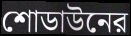
শোডাউনের